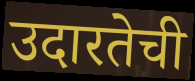
उदारतेची